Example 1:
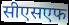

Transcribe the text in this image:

सीएसएफ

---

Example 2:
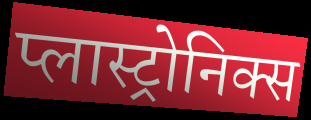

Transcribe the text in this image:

प्लास्ट्रोनिक्स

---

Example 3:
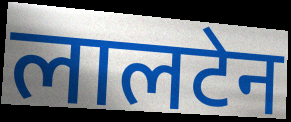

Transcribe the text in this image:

लालटेन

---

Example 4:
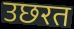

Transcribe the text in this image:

उछरत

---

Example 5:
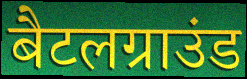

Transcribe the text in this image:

बैटलग्राउंड